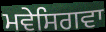
ਮਵੇਸਿਗਵਾ